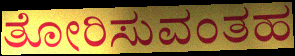
ತೋರಿಸುವಂತಹ